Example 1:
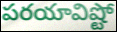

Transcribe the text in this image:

పరయావిష్టో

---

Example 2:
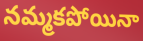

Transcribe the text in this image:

నమ్మకపోయినా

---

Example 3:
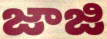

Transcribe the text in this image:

జాజి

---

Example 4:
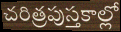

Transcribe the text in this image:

చరిత్రపుస్తకాల్లో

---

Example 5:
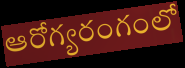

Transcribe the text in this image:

ఆరోగ్యరంగంలో